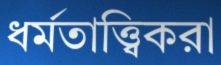
ধর্মতাত্ত্বিকরা